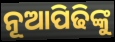
ନୂଆପିଢିଙ୍କୁ